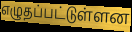
எழுதப்பட்டுள்ளன